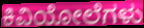
ಕಿವಿಯೋಲೆಗಳು